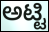
ಅಟ್ಟಿ